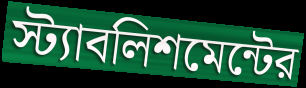
স্ট্যাবলিশমেন্টের